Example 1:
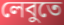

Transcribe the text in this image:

লেবুতে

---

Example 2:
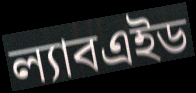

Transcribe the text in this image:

ল্যাবএইড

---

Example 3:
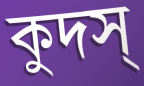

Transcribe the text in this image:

কুদস্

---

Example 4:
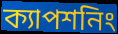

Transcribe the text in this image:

ক্যাপশনিং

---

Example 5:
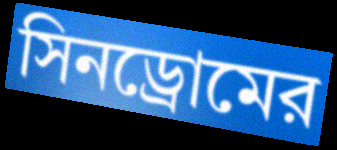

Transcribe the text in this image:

সিনড্রোমের